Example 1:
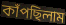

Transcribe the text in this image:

কাঁপছিলাম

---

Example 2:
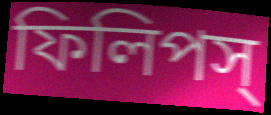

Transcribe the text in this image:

ফিলিপস্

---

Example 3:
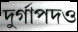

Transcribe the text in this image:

দুর্গাপদও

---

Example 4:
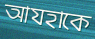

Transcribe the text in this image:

আযহাকে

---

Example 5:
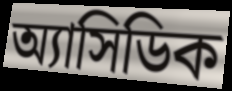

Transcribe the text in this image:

অ্যাসিডিক